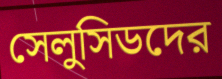
সেলুসিডদের